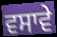
ਵਸਾਵੇ